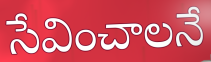
సేవించాలనే